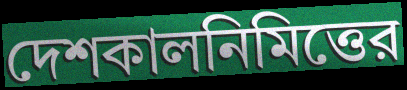
দেশকালনিমিত্তের